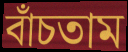
বাঁচতাম